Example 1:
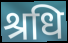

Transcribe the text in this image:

श्रधि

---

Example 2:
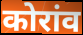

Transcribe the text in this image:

कोरांव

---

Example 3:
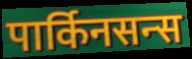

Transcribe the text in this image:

पार्किनसन्स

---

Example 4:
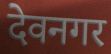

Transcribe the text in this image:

देवनगर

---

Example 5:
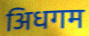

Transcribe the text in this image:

अिधगम